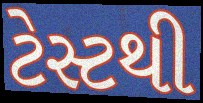
ટેસ્ટથી